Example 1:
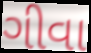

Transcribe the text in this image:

ગીવા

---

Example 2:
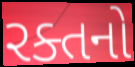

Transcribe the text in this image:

રક્તનો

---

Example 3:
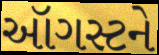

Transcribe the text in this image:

ઑગસ્ટને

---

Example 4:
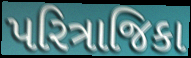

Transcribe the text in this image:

પરિત્રાજિકા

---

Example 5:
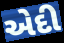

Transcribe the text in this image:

એદી